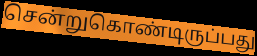
சென்றுகொண்டிருப்பது